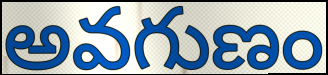
అవగుణం